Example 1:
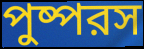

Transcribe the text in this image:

পুষ্পরস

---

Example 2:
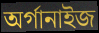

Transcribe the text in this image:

অর্গানাইজ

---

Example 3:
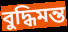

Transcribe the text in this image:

বুদ্ধিমন্ত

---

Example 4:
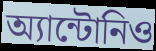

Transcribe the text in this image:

অ্যান্টোনিও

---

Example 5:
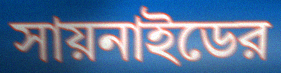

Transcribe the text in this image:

সায়নাইডের